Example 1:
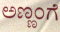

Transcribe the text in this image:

ಅಣ್ಣಂಗೆ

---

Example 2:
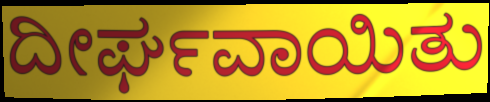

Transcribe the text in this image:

ದೀರ್ಘವಾಯಿತು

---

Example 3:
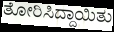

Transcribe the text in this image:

ತೋರಿಸಿದ್ದಾಯಿತು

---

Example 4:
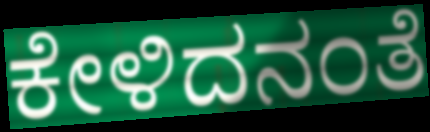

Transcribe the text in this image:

ಕೇಳಿದನಂತೆ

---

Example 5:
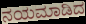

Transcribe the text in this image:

ನಯಮಾಡಿದ